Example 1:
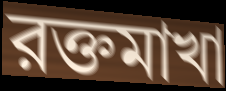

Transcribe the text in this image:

রক্তমাখা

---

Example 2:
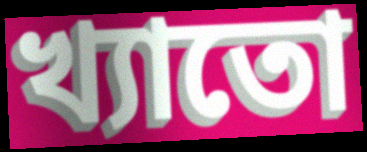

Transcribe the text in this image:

খ্যাতো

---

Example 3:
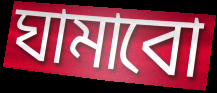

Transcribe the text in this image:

ঘামাবো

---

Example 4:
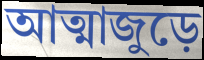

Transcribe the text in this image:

আত্মাজুড়ে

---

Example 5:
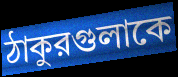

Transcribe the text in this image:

ঠাকুরগুলাকে